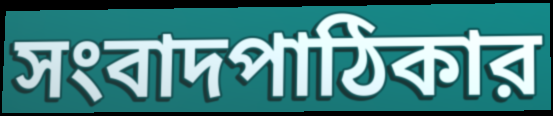
সংবাদপাঠিকার